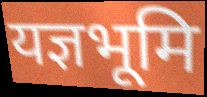
यज्ञभूमि